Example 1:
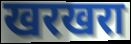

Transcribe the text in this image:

खरखरा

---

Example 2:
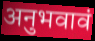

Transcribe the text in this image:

अनुभवावं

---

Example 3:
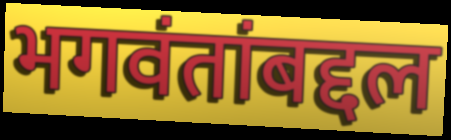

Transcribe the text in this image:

भगवंतांबद्दल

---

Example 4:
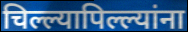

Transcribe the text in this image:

चिल्ल्यापिल्ल्यांना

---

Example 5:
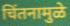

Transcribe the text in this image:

चिंतनामुळे